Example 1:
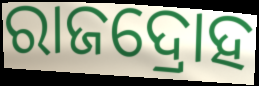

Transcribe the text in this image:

ରାଜଦ୍ରୋହ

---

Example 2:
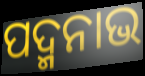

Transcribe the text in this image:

ପଦ୍ମନାଭ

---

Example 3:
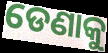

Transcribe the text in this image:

ଡେଣାକୁ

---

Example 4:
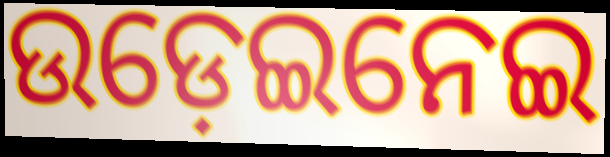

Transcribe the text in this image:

ଉଡ଼େଇନେଇ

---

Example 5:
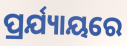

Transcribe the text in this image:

ପ୍ରର୍ଯ୍ୟାୟରେ